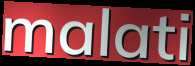
malati